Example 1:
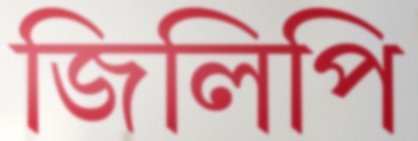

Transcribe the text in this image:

জিলিপি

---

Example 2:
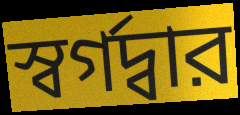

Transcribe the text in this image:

স্বর্গদ্বার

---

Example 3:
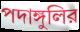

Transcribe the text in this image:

পদাঙ্গুলির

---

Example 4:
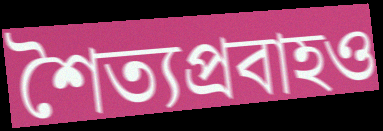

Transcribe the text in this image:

শৈত্যপ্রবাহও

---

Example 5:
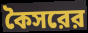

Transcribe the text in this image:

কৈসরের